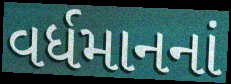
વર્ધમાનનાં